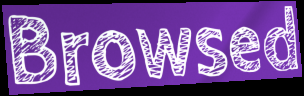
Browsed